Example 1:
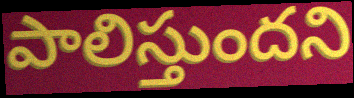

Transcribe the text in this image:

పాలిస్తుందని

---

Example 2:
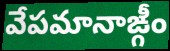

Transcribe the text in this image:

వేపమానాఙ్గీం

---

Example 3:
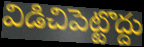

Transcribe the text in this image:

విడిచిపెట్టొద్దు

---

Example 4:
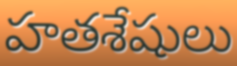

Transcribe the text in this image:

హతశేషులు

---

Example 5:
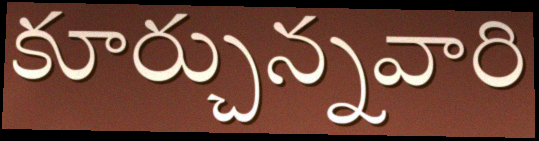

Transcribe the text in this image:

కూర్చున్నవారి